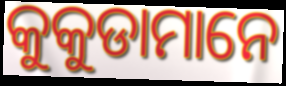
କୁକୁଡାମାନେ